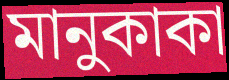
মানুকাকা